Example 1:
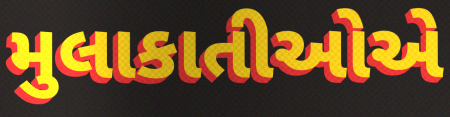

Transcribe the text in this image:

મુલાકાતીઓએ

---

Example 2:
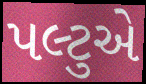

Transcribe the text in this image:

પલ્ટુએ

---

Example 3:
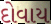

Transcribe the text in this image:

દોવાય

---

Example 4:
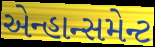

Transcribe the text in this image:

એન્હાન્સમેન્ટ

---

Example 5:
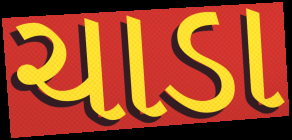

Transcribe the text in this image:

ચાડા